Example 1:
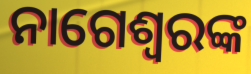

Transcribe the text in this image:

ନାଗେଶ୍ୱରଙ୍କ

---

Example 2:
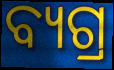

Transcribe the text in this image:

ବ୍ୟଗ୍ର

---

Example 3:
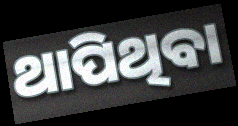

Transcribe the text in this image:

ଥାପିଥିବା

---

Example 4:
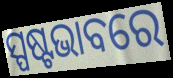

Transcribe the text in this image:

ସ୍ପଷ୍ଟଭାବରେ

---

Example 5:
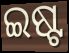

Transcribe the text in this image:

ଇଷ୍ଟ